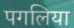
पगलिया